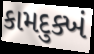
કામદુક્ખં